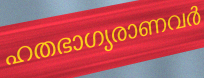
ഹതഭാഗ്യരാണവർ